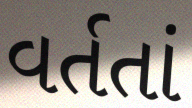
વર્તતાં